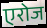
एरोज